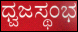
ಧ್ವಜಸ್ಥಂಭ